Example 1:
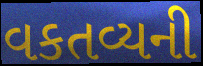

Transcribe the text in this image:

વકતવ્યની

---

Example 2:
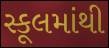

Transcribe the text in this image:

સ્કૂલમાંથી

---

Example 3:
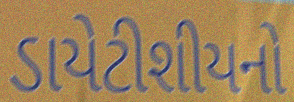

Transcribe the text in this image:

ડાયેટીશીયનો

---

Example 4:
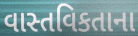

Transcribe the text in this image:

વાસ્તવિકતાના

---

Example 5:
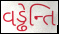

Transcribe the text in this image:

વડ્ઢેન્તિ